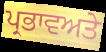
ਪ੍ਰਭਾਵਅਤੇ